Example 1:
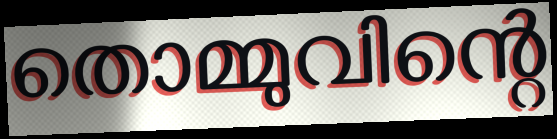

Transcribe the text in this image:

തൊമ്മുവിന്റെ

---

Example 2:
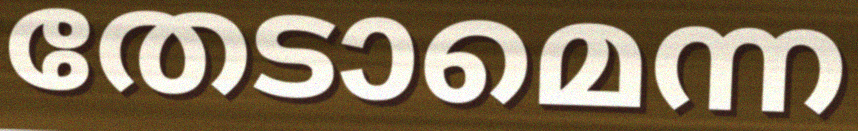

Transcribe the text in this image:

തേടാമെന്ന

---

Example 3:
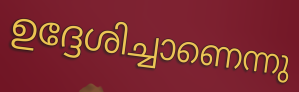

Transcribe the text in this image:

ഉദ്ദേശിച്ചാണെന്നു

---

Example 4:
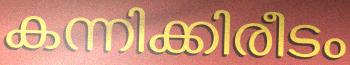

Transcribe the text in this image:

കന്നിക്കിരീടം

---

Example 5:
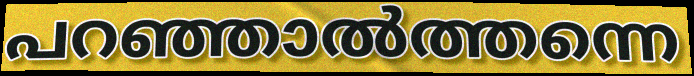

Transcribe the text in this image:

പറഞ്ഞാൽത്തന്നെ